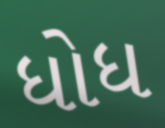
ધોધ